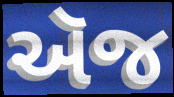
ઍજ